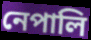
নেপালি